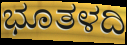
ಭೂತಳದಿ